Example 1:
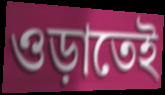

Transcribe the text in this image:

ওড়াতেই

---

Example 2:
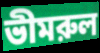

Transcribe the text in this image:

ভীমরুল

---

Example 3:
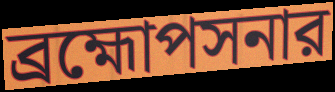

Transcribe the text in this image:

ব্রহ্মোপসনার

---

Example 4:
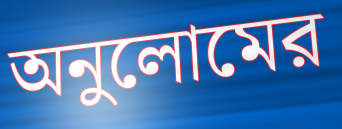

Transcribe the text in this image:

অনুলোমের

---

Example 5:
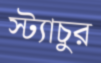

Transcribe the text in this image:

স্ট্যাচুর